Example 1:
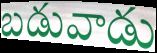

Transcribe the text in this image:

బడువాడు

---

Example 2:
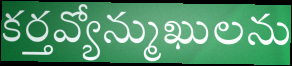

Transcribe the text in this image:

కర్తవ్యోన్ముఖులను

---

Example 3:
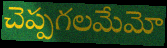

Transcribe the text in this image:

చెప్పగలమేమో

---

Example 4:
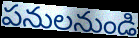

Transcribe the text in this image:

పనులనుండి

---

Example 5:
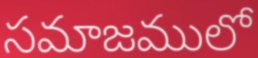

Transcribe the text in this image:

సమాజములో